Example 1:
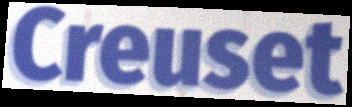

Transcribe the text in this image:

Creuset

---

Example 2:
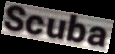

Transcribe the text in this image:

Scuba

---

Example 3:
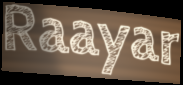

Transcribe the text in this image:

Raayar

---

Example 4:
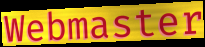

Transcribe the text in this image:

Webmaster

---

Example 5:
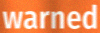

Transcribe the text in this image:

warned